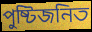
পুষ্টিজনিত